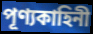
পূণ্যকাহিনী